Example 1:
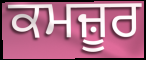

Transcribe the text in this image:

ਕਮਜ਼ੂਰ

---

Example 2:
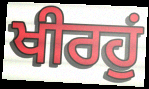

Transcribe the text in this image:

ਖੀਰਹੁਂ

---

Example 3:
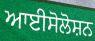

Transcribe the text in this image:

ਆਈਸੋਲੋਸ਼ਨ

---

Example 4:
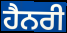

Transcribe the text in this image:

ਹੈਨਰੀ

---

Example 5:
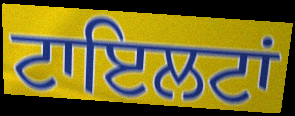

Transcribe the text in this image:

ਟਾਇਲਟਾਂ